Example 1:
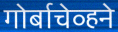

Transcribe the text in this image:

गोर्बाचेव्हने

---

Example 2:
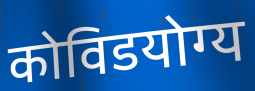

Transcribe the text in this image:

कोविडयोग्य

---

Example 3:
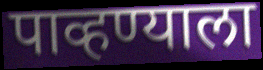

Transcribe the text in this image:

पाव्हण्याला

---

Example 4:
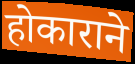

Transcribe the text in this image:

होकाराने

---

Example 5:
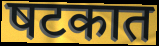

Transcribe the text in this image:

षटकात